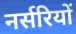
नर्सरियों